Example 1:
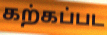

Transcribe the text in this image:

கற்கப்பட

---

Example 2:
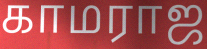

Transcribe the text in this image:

காமராஜ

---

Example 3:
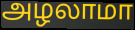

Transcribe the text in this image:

அழலாமா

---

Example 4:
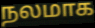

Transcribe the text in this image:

நலமாக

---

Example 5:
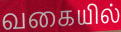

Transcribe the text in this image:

வகையில்